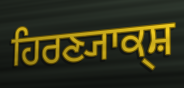
ਹਿਰਣ੍ਯਾਕ੍ਸ਼